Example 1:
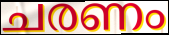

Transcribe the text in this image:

ചരണം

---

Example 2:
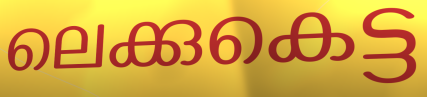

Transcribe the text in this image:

ലെക്കുകെട്ട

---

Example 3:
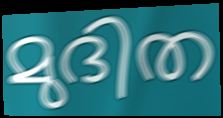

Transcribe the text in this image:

മുദിത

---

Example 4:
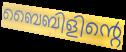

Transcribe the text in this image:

ബൈബിളിന്റെ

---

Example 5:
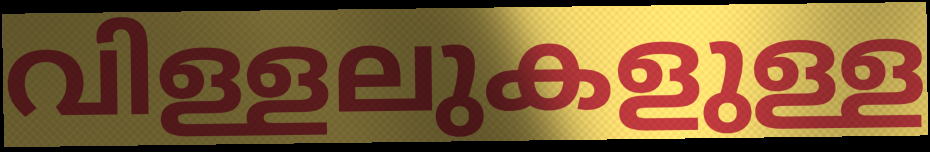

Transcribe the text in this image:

വിള്ളലുകളുള്ള